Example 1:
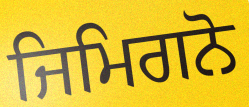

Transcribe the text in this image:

ਜਿਮਿਗਨੋ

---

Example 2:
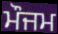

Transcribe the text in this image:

ਮੌਜਮ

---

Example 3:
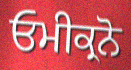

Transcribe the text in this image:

ਓਮੀਕ੍ਰਨੋ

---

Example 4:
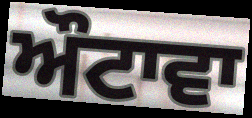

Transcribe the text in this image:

ਔਟਾਵਾ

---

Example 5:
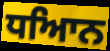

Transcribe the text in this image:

ਧਆਿਨ